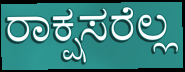
ರಾಕ್ಷಸರೆಲ್ಲ